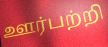
ஊர்பற்றி